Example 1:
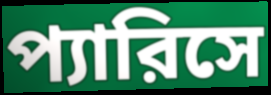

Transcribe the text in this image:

প্যারিসে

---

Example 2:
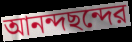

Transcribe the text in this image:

আনন্দছন্দের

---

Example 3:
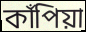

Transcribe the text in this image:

কাঁপিয়া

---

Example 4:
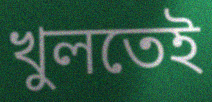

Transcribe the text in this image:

খুলতেই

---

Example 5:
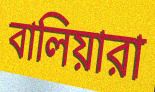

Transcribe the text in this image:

বালিয়ারা